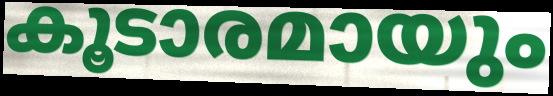
കൂടാരമായും